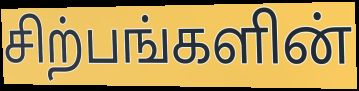
சிற்பங்களின்